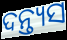
ଦନ୍ତ୍ୟସ